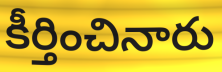
కీర్తించినారు